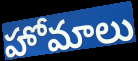
హోమాలు